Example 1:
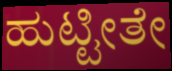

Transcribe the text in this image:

ಹುಟ್ಟೀತೇ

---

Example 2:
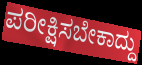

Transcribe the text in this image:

ಪರೀಕ್ಷಿಸಬೇಕಾದ್ದು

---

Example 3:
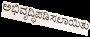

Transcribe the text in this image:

ಅಭಿವೃದ್ಧಿಪಡಿಸಲಾಯಿತು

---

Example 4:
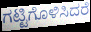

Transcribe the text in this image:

ಗಟ್ಟಿಗೊಳಿಸಿದರೆ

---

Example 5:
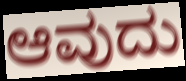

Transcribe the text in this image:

ಆವುದು